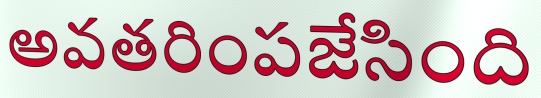
అవతరింపజేసింది